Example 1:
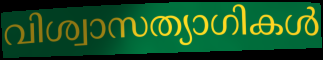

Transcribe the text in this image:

വിശ്വാസത്യാഗികൾ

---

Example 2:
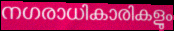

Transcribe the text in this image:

നഗരാധികാരികളും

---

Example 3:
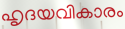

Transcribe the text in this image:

ഹൃദയവികാരം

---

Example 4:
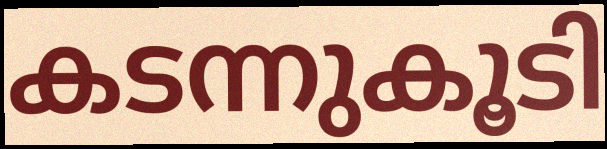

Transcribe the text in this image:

കടന്നുകൂടി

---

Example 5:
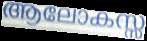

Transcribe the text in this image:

ആലോകസ്സ